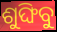
ଶୁଙ୍ଘିବୁ